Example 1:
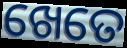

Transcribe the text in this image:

ଖେତେ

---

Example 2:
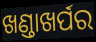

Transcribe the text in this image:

ଖଣ୍ଡାଖର୍ପର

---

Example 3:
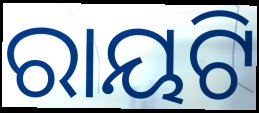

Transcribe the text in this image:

ରାୟଟି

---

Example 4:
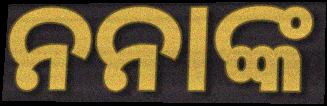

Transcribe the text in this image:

ନନାଙ୍କ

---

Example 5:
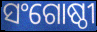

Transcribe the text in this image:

ସଂଗୋଷ୍ଠୀ